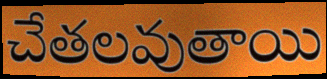
చేతలవుతాయి